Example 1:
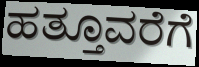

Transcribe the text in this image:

ಹತ್ತೂವರೆಗೆ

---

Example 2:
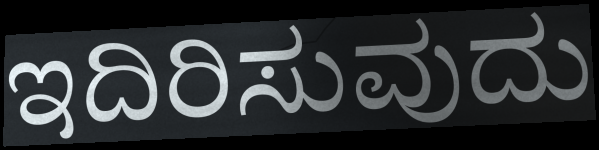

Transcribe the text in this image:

ಇದಿರಿಸುವುದು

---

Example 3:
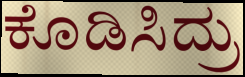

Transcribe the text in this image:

ಕೊಡಿಸಿದ್ರು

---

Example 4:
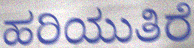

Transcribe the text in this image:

ಹರಿಯುತಿರೆ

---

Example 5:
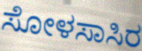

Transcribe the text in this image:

ಸೋಳಸಾಸಿರ